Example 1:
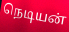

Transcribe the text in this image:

நெடியன்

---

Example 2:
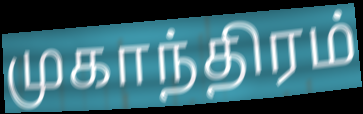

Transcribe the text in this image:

முகாந்திரம்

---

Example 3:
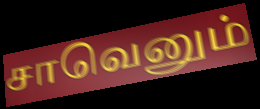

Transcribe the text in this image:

சாவெனும்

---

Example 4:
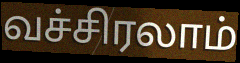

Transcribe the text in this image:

வச்சிரலாம்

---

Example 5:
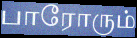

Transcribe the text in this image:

பாரோரும்